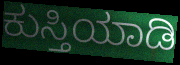
ಕುಸ್ತಿಯಾಡಿ